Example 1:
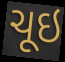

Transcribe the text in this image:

ચૂઇ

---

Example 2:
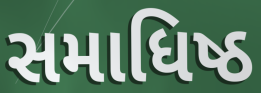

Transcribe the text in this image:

સમાધિષ્ઠ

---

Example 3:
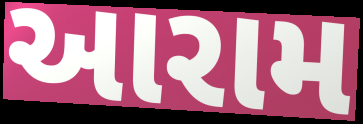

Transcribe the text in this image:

આરામ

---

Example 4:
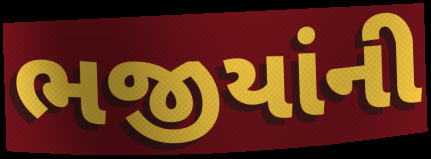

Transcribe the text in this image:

ભજીયાંની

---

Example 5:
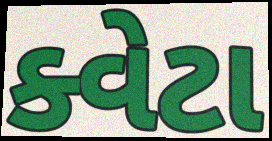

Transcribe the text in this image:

ક્વેટા